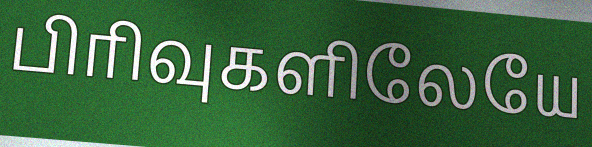
பிரிவுகளிலேயே